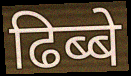
ढिब्बे